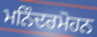
ਮਨਿੰਦਰਮੋਹਨ